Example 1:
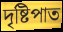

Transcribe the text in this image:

দৃষ্টিপাত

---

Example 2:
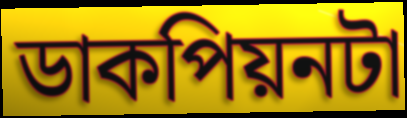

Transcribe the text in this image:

ডাকপিয়নটা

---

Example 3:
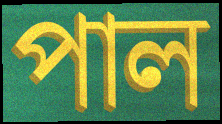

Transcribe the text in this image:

পাল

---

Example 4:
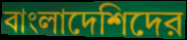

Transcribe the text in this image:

বাংলাদেশিদের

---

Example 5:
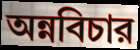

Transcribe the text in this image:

অন্নবিচার